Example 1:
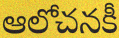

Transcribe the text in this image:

ఆలోచనకీ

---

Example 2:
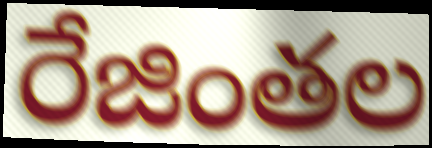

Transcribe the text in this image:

రేజింతల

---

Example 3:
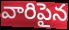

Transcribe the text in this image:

వారిపైన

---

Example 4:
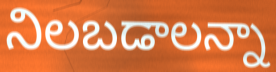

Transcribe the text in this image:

నిలబడాలన్నా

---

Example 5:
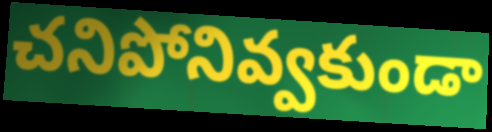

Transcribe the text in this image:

చనిపోనివ్వకుండా